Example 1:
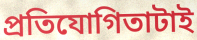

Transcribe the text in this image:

প্রতিযোগিতাটাই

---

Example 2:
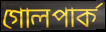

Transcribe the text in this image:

গোলপার্ক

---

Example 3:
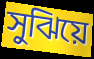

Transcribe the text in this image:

সুঝিয়ে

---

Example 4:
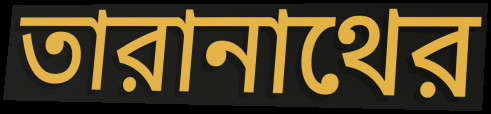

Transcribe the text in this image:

তারানাথের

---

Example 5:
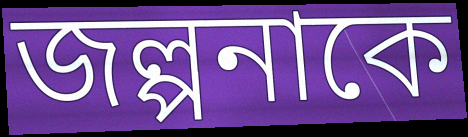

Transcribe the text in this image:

জল্পনাকে